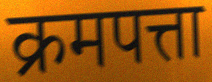
क्रमपत्ता